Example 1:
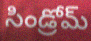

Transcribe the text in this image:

సిండ్రోమ్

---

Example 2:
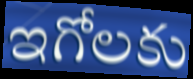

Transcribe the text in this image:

ఇగోలకు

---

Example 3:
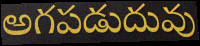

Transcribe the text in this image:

అగపడుదువు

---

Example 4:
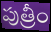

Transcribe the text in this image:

పుత్రీం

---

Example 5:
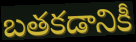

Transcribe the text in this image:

బతకడానికీ